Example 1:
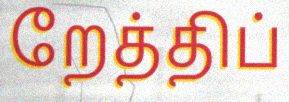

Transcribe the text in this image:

றேத்திப்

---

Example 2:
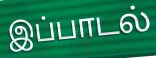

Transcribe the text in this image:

இப்பாடல்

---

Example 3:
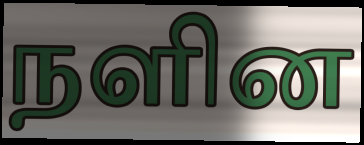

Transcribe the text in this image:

நளின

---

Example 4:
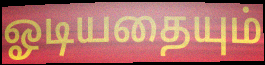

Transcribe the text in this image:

ஓடியதையும்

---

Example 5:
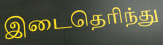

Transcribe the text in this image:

இடைதெரிந்து